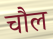
चौल